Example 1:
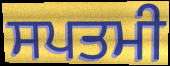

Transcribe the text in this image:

ਸਪਤਮੀ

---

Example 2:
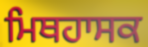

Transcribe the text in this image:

ਮਿਥਹਾਸਕ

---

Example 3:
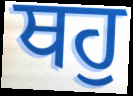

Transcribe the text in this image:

ਥਹੁ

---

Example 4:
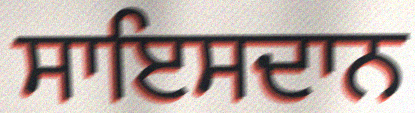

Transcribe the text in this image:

ਸਾਇਸਦਾਨ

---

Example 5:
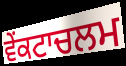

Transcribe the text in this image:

ਵੇਂਕਟਾਚਲਮ